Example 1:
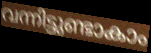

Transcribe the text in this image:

വന്നിട്ടുണ്ടാകാം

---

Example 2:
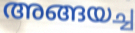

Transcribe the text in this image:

അങ്ങയച്ച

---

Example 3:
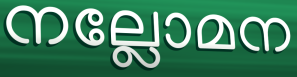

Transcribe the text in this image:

നല്ലോമന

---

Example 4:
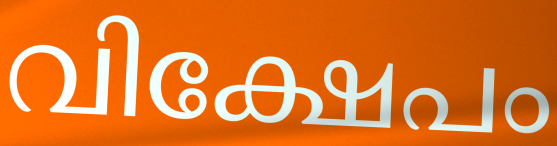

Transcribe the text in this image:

വിക്ഷേപം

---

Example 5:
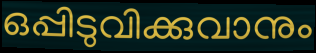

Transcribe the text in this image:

ഒപ്പിടുവിക്കുവാനും